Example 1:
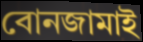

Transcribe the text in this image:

বোনজামাই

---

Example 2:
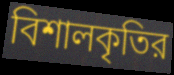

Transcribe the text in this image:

বিশালকৃতির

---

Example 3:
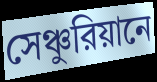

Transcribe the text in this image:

সেঞ্চুরিয়ানে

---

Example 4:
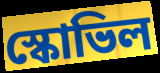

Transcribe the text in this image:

স্কোভিল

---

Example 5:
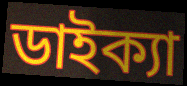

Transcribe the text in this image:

ডাইক্যা